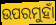
ଉପରମୁହାଁ